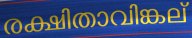
രക്ഷിതാവിങ്കല്